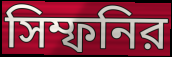
সিম্ফনির